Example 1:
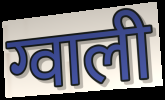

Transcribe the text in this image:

ग्वाली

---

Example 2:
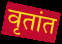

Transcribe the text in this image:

वृतांत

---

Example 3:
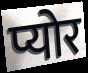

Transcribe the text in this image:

प्योर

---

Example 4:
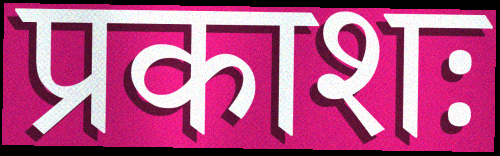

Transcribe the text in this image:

प्रकाशः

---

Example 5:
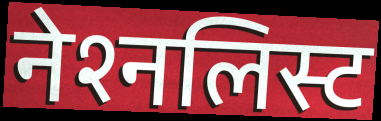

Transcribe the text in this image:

नेश्नलिस्ट